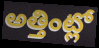
అత్తింట్లో